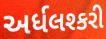
અર્ધલશ્કરી